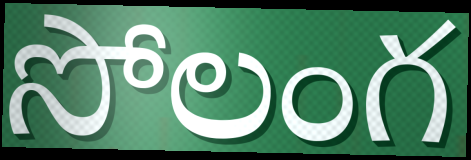
సోలంగ